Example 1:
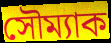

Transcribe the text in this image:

সৌম্যাক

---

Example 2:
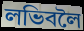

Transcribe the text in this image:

লভিবলৈ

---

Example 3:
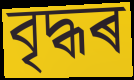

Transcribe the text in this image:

বৃদ্ধৰ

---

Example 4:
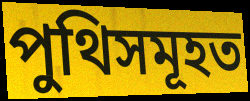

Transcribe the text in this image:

পুথিসমূহত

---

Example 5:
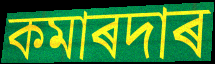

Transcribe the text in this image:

কমাৰদাৰ